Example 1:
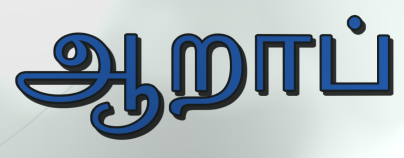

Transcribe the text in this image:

ஆறாப்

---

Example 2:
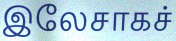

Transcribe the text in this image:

இலேசாகச்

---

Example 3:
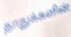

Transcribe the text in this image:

தாதுக்களின்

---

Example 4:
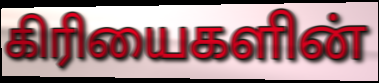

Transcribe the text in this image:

கிரியைகளின்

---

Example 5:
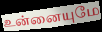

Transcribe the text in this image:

உன்னையுமே